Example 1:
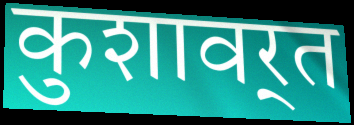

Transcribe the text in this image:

कुशावर्त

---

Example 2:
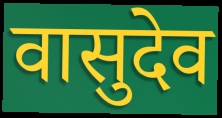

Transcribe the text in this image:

वासुदेव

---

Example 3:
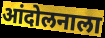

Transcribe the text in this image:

आंदोलनाला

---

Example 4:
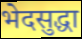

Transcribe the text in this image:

भेदसुद्धा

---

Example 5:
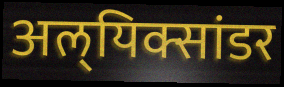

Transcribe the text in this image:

अल्यिक्सांडर